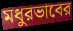
মধুরভাবের